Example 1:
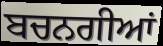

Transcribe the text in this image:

ਬਚਨਗੀਆਂ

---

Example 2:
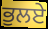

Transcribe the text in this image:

ਭੁਲਏ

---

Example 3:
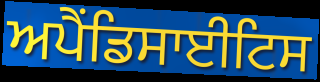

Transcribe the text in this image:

ਅਪੈਂਡਿਸਾਈਟਿਸ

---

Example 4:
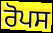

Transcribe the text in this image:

ਰੋਪਸ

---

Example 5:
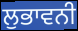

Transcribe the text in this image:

ਲੁਭਾਵਨੀ